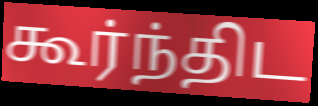
கூர்ந்திட